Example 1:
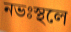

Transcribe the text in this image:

নভঃস্থলে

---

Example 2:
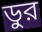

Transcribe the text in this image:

ডুর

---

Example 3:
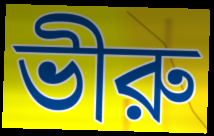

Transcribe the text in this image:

ভীরু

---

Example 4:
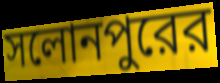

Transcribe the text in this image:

সলোনপুরের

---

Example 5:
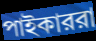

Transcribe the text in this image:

পাইকাররা